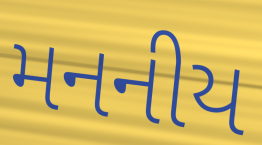
મનનીય